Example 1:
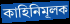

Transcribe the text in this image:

কাহিনিমূলক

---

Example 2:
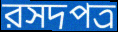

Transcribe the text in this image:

রসদপত্র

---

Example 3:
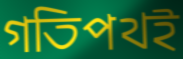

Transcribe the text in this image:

গতিপথই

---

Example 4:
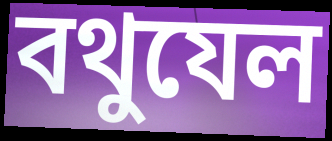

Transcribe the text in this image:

বথুযেল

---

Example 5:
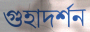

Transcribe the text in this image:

গুহাদর্শন